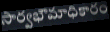
సార్వభౌమాధికారం